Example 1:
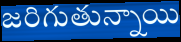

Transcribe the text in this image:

జరిగుతున్నాయి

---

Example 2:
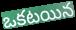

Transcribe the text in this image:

ఒకటయిన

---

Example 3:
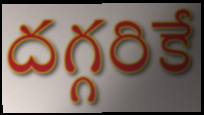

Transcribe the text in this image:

దగ్గరికే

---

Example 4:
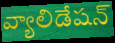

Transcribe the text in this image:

వ్యాలిడేషన్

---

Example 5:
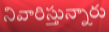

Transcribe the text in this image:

నివారిస్తున్నారు